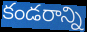
కండరాన్ని